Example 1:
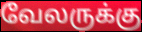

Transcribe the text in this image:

வேலருக்கு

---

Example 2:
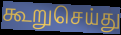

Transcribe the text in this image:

கூறுசெய்து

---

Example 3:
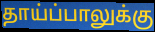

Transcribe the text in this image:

தாய்ப்பாலுக்கு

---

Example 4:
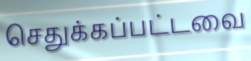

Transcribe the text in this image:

செதுக்கப்பட்டவை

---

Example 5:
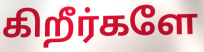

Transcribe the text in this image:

கிறீர்களே